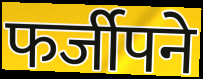
फर्जीपने